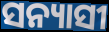
ସନ୍ୟାସୀ